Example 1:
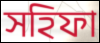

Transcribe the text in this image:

সহিফা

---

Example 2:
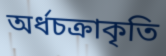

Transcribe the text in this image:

অর্ধচক্রাকৃতি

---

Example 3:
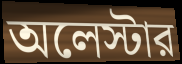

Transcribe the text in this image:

অলেস্টার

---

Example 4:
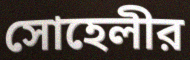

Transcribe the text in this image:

সোহেলীর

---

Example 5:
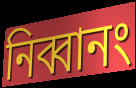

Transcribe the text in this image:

নিব্বানং